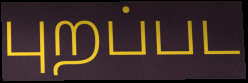
புறப்பட